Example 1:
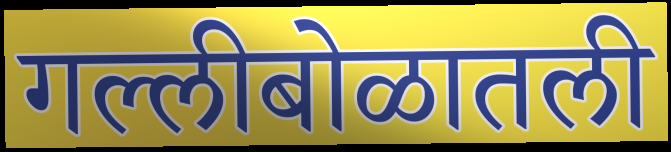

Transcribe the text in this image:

गल्लीबोळातली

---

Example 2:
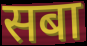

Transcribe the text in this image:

सबा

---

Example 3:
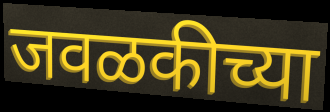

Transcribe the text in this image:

जवळकीच्या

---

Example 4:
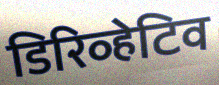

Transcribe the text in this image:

डिरिव्हेटिव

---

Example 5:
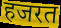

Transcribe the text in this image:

हजरत